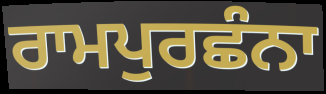
ਰਾਮਪੁਰਛੰਨਾ